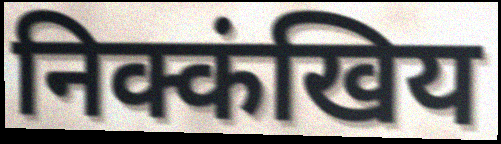
निक्कंखिय